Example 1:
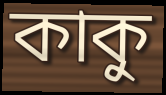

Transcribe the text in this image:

কাকু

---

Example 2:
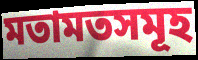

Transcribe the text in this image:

মতামতসমূহ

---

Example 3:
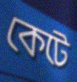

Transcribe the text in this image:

কেটে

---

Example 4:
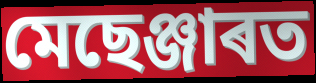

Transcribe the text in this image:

মেছেঞ্জাৰত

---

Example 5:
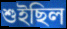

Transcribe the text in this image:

শুইছিল